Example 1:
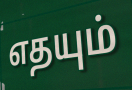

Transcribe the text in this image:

எதயும்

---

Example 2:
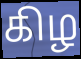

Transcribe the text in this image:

கிழ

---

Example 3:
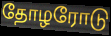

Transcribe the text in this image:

தோழரோடு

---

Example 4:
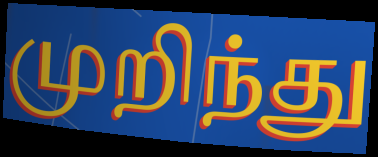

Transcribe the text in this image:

முறிந்து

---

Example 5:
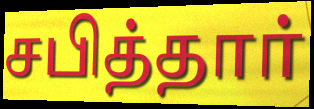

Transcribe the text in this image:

சபித்தார்